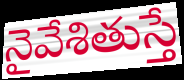
నైవేశితుస్తే